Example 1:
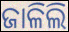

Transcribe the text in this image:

ଜାଳିଲି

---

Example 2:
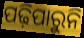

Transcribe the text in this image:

ପଢ଼ିପାରୁନି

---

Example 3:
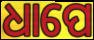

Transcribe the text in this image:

ଧାପେ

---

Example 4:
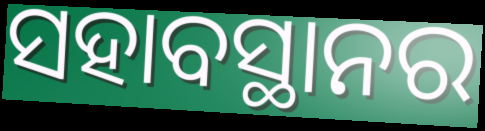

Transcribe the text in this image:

ସହାବସ୍ଥାନର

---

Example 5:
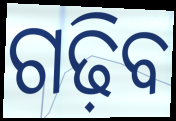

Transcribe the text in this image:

ଗଢ଼ିବ